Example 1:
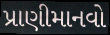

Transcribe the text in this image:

પ્રાણીમાનવો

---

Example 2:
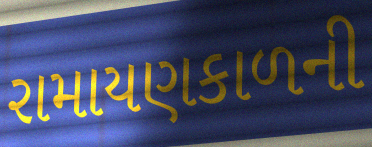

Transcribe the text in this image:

રામાયણકાળની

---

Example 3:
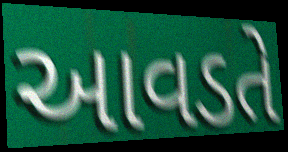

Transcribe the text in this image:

આવડતે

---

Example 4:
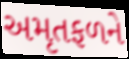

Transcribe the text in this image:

અમૃતફળને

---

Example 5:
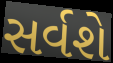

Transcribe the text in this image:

સર્વશે